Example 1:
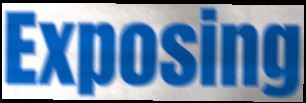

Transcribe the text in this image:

Exposing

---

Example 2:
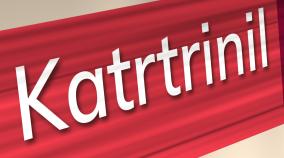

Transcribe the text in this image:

Katrtrinil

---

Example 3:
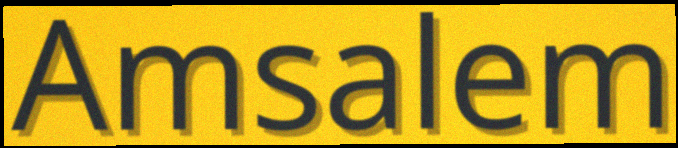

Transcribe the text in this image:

Amsalem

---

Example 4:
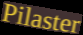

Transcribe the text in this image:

Pilaster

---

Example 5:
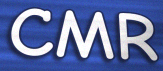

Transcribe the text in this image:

CMR